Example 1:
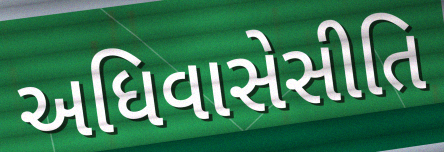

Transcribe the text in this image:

અધિવાસેસીતિ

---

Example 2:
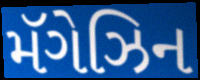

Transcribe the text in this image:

મૅગેઝિન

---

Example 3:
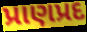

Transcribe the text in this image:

પ્રાણપ્રદ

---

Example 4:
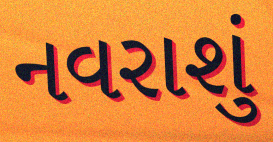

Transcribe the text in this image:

નવરાશું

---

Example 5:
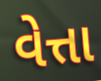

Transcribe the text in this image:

વેત્તા